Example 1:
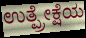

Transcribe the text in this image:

ಉತ್ಪ್ರೇಕ್ಷೆಯ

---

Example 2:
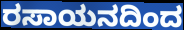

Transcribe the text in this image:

ರಸಾಯನದಿಂದ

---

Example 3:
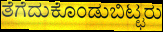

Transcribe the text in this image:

ತೆಗೆದುಕೊಂಡುಬಿಟ್ಟರು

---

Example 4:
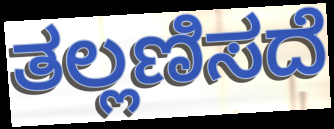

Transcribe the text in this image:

ತಲ್ಲಣಿಸದೆ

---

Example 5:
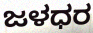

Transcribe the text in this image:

ಜಳಧರ